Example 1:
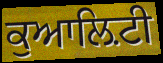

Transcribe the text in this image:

ਕੁਆਲ਼ਿਟੀ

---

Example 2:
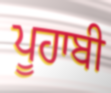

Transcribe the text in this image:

ਪੂਹਾਬੀ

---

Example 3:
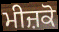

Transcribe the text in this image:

ਮੀਜ਼ਕੋ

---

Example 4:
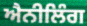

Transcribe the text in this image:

ਐਨੀਲਿੰਗ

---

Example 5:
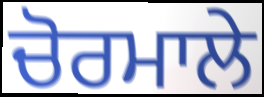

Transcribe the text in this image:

ਚੋਰਮਾਲੇ